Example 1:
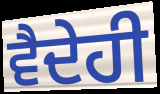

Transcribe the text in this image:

ਵੈਦੇਹੀ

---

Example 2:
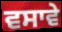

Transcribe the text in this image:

ਵਸਾਵੇ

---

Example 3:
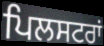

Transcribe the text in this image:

ਪਿਲਸਟਰਾਂ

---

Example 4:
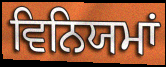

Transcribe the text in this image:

ਵਿਨਿਯਮਾਂ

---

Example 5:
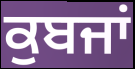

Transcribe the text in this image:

ਕੁਬਜਾਂ